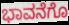
ಭಾವನೆಗೊ